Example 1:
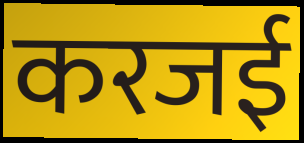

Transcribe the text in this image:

करजई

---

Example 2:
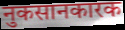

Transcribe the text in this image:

नुकसानकारक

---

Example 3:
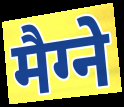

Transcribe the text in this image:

मैग्ने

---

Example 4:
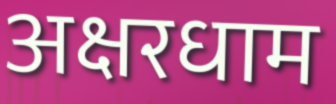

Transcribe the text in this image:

अक्षरधाम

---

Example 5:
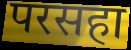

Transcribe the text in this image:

परसहा